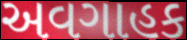
અવગાહક